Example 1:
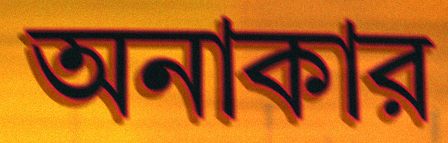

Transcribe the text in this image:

অনাকার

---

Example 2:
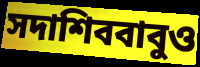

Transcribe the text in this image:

সদাশিববাবুও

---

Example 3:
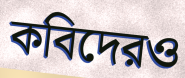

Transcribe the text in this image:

কবিদেরও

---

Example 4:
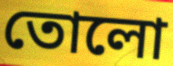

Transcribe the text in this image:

তোলো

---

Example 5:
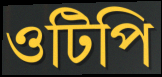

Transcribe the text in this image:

ওটিপি